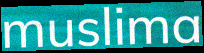
muslima